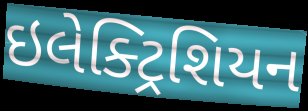
ઇલેક્ટ્રિશિયન